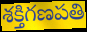
శక్తిగణపతి